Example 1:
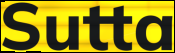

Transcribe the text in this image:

Sutta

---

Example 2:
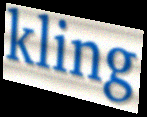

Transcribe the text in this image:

kling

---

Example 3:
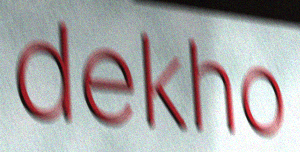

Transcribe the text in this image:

dekho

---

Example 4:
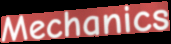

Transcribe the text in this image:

Mechanics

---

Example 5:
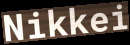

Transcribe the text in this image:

Nikkei